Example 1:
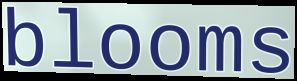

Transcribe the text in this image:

blooms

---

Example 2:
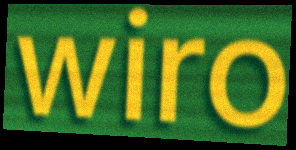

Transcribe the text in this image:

wiro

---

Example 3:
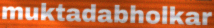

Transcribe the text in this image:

muktadabholkar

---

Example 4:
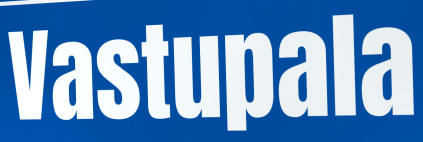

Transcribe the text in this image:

Vastupala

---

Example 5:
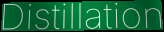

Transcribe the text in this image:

Distillation